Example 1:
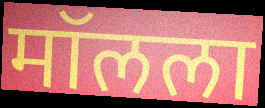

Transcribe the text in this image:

मॉलला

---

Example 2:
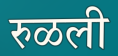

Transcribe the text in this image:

रुळली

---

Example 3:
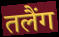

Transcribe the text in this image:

तलैंग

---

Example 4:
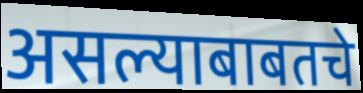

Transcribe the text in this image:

असल्याबाबतचे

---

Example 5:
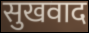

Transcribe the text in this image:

सुखवाद